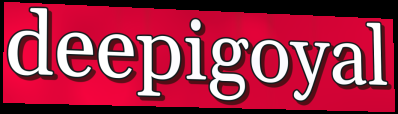
deepigoyal